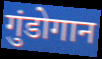
गुंडोगान